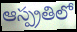
ఆస్ప్రతిలో